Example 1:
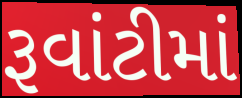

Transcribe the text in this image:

રૂવાંટીમાં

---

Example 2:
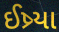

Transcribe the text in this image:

ઈષ્ર્યા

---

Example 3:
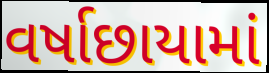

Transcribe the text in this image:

વર્ષાછાયામાં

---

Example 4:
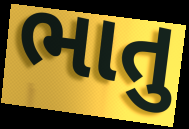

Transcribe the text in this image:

ભાતુ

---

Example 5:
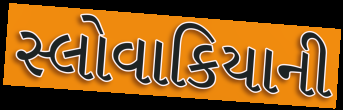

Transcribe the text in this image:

સ્લોવાકિયાની